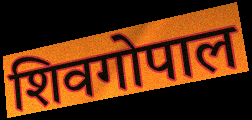
शिवगोपाल